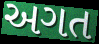
અગત